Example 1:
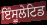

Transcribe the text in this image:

ਇੰਸੂਲੇਟਿਡ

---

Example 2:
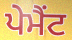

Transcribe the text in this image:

ਪੇਮੈਂਟ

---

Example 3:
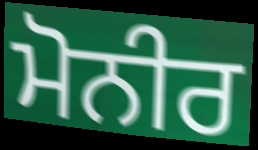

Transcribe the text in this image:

ਮੋਨੀਰ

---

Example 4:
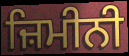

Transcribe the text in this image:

ਜ਼ਿਮੀਨੀ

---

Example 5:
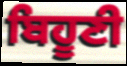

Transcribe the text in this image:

ਬਿਹੂਣੀ